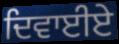
ਦਿਵਾਈਏ